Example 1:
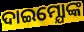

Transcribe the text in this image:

ଦାଇମ୍ଯୋଙ୍କ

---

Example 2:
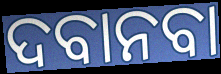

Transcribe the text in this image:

ଦବାନବା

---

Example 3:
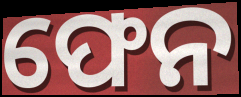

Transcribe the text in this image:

ଫେନ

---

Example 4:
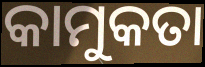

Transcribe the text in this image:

କାମୁକତା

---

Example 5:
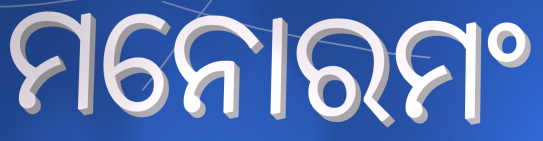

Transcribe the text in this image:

ମନୋରମଂ